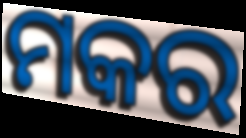
ମକର